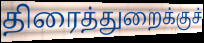
திரைத்துறைக்குச்